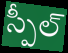
స్పీల్